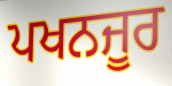
ਪਖਨਜੂਰ